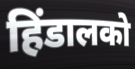
हिंडालको